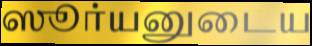
ஸூர்யனுடைய